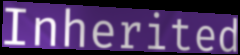
Inherited